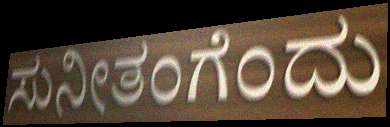
ಸುನೀತಂಗೆಂದು